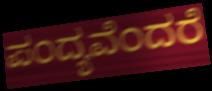
ಪಂದ್ಯವೆಂದರೆ